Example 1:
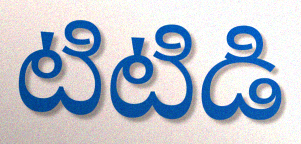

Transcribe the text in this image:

టిటిడి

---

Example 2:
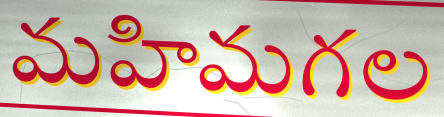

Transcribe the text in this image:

మహిమగల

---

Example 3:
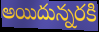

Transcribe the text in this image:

అయిదున్నరకి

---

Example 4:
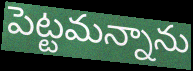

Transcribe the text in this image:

పెట్టమన్నాను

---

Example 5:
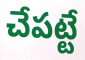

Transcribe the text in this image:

చేపట్టే